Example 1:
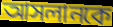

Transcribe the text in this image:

আসলানকে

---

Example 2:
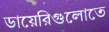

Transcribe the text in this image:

ডায়েরিগুলোতে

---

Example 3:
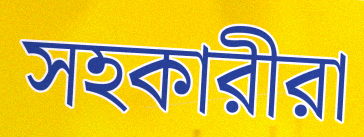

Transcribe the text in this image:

সহকারীরা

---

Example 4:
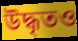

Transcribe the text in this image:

উদ্ধৃতও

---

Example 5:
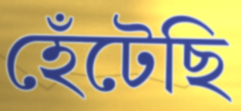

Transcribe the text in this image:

হেঁটেছি